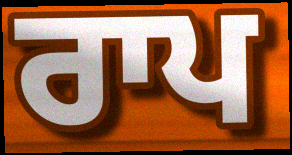
ਰਾਪ